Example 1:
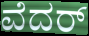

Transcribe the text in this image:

ವೆದರ್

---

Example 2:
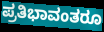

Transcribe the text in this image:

ಪ್ರತಿಭಾವಂತರೂ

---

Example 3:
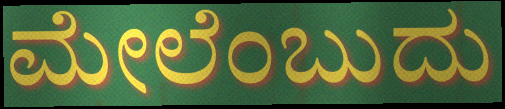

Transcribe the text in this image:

ಮೇಲೆಂಬುದು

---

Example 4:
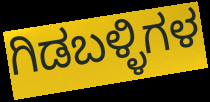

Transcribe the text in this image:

ಗಿಡಬಳ್ಳಿಗಳ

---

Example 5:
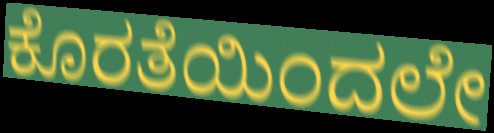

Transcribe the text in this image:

ಕೊರತೆಯಿಂದಲೇ